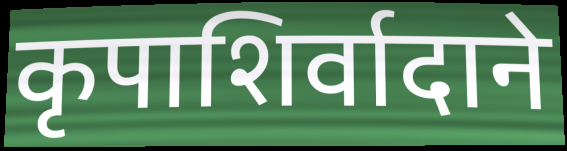
कृपाशिर्वादाने